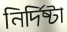
নির্দিষ্টা